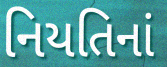
નિયતિનાં